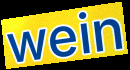
wein